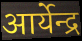
आर्येन्द्र